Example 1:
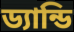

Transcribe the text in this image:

ড্যান্ডি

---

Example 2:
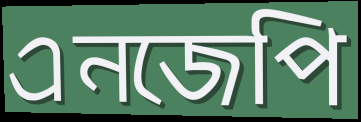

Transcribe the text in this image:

এনজেপি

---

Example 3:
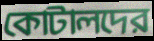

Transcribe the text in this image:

কোটালদের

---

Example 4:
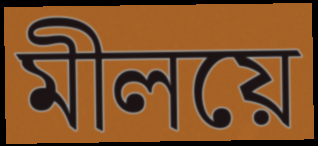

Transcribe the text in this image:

মীলয়ে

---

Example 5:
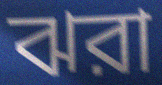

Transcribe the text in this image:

ঝরা